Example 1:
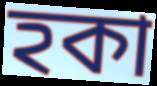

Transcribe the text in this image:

হকা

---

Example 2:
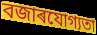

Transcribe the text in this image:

বজাৰযোগ্যতা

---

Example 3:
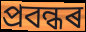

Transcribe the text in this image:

প্ৰবন্ধৰ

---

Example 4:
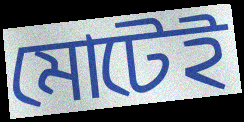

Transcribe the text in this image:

মোটেই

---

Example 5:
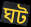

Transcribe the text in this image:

ঘট